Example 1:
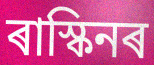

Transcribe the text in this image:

ৰাস্কিনৰ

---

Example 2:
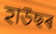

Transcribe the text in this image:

হাউছৰ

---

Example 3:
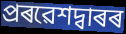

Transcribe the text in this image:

প্ৰৰৱেশদ্বাৰৰ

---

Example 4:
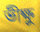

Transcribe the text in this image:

ভীক্ষু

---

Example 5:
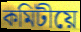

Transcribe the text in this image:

কমিটীয়ে